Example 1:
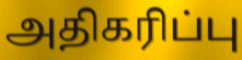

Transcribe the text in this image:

அதிகரிப்பு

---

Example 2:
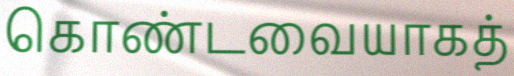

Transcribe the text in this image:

கொண்டவையாகத்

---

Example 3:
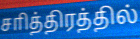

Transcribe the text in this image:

சரித்திரத்தில்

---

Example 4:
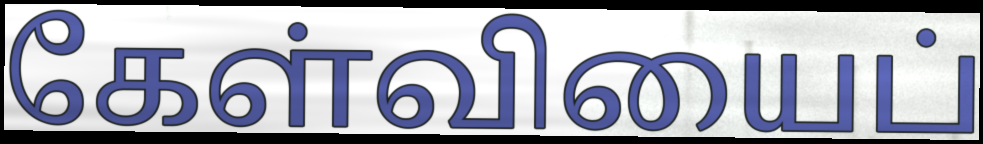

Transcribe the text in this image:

கேள்வியைப்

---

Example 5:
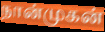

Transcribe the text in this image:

நான்முகன்